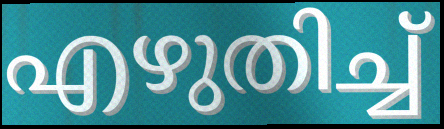
എഴുതിച്ച്